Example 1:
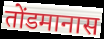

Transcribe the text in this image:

तोंडमानास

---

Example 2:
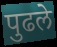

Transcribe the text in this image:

पुढले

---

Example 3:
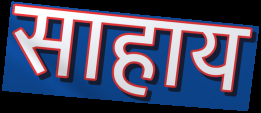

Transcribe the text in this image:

साहाय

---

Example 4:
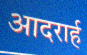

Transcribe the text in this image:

आदरार्ह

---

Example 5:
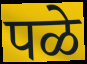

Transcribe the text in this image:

पळे